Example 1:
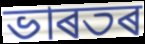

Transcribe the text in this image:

ভাৰতৰ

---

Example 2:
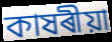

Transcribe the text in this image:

কাষৰীয়া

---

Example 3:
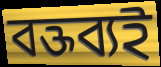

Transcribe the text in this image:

বক্তব্যই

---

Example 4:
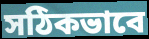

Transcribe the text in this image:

সঠিকভাবে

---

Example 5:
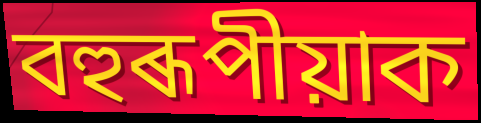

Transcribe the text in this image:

বহুৰূপীয়াক